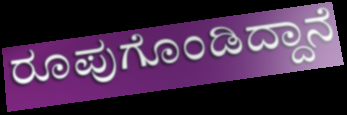
ರೂಪುಗೊಂಡಿದ್ದಾನೆ